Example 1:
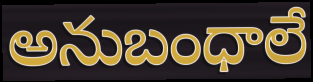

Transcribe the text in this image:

అనుబంధాలే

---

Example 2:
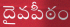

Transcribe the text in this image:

దైవపీఠం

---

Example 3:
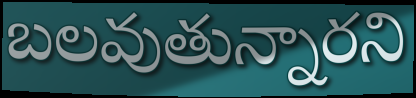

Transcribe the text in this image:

బలవుతున్నారని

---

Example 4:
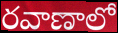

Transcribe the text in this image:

రవాణాలో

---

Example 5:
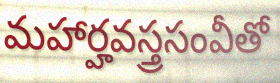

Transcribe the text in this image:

మహార్హవస్త్రసంవీతో